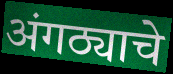
अंगठ्याचे